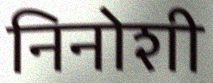
निनोशी